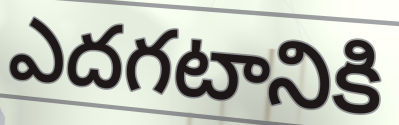
ఎదగటానికి